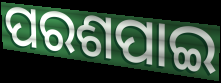
ପରଶପାଇ